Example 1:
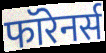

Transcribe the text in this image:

फॉरेनर्स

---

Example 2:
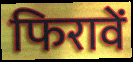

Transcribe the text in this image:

फिरावें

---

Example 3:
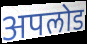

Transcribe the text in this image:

अपलोड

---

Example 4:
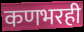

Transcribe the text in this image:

कणभरही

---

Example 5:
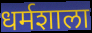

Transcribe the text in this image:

धर्मशाला